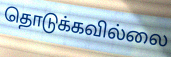
தொடுக்கவில்லை